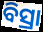
ବିସ୍ରା